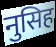
नुसिह